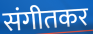
संगीतकर